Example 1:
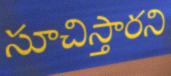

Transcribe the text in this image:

సూచిస్తారని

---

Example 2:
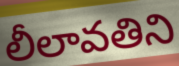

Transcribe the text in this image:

లీలావతిని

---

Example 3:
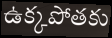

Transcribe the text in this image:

ఉక్కపోతకు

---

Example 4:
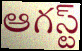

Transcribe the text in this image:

ఆగస్ట్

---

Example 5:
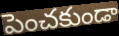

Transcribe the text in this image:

పెంచకుండా